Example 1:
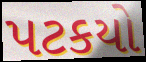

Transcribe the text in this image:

પટકયો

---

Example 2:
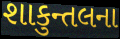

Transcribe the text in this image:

શાકુન્તલના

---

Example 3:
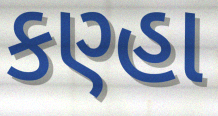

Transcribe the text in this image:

કણ્હા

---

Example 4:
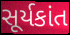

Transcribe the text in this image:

સૂર્યકાંત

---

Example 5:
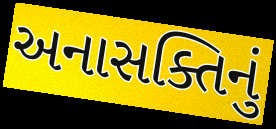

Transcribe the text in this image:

અનાસક્તિનું